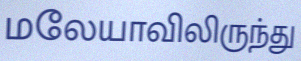
மலேயாவிலிருந்து